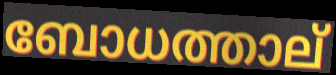
ബോധത്താല്